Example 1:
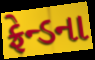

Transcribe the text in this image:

ફ્રેન્ડના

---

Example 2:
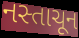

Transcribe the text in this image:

નસ્તાચૂન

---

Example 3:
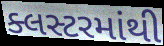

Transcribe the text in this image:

ક્લસ્ટરમાંથી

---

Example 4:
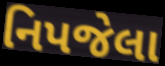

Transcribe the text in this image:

નિપજેલા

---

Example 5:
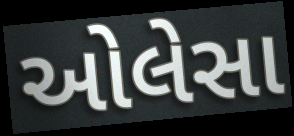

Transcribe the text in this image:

ઓલેસા